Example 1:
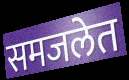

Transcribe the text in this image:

समजलेत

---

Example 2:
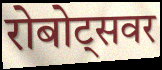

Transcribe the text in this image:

रोबोट्सवर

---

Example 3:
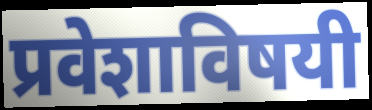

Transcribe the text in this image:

प्रवेशाविषयी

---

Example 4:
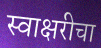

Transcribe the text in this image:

स्वाक्षरीचा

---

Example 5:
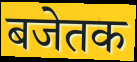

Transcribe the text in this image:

बजेतक